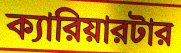
ক্যারিয়ারটার